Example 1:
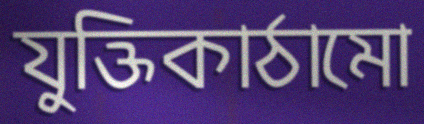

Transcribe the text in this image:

যুক্তিকাঠামো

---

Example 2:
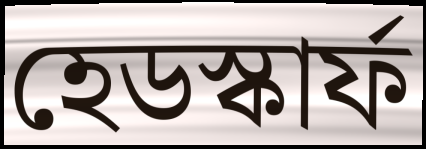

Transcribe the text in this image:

হেডস্কার্ফ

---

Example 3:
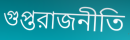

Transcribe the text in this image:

গুপ্তরাজনীতি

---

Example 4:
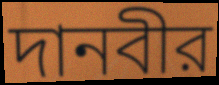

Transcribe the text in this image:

দানবীর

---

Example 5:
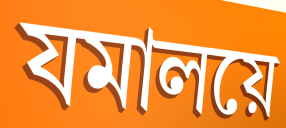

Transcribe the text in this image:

যমালয়ে